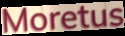
Moretus